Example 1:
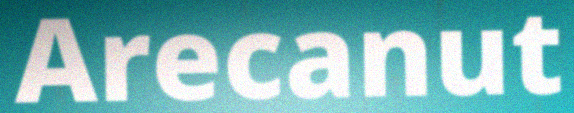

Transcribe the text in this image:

Arecanut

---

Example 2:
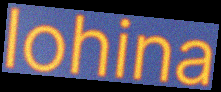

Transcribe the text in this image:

lohina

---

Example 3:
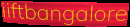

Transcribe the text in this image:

iiftbangalore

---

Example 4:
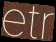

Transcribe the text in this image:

etr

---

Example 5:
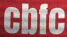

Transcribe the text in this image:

cbfc